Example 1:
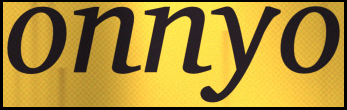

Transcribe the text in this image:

onnyo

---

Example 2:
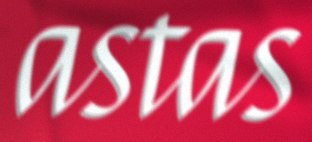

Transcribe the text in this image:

astas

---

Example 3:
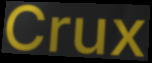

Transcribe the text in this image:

Crux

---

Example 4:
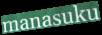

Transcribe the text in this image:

manasuku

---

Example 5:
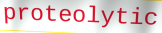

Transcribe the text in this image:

proteolytic